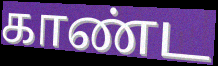
காண்ட